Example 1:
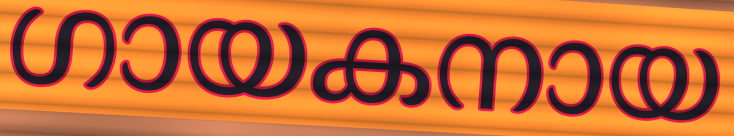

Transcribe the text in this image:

ഗായകനായ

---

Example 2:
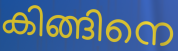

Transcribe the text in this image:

കിങ്ങിനെ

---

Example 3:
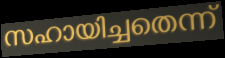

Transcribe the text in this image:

സഹായിച്ചതെന്ന്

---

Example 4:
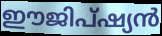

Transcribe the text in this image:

ഈജിപ്ഷ്യൻ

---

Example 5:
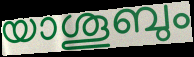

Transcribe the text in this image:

യാശൂബും